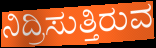
ನಿದ್ರಿಸುತ್ತಿರುವ